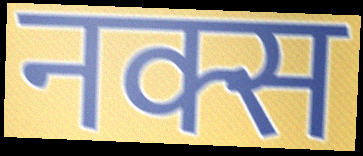
नक्स